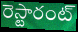
రెస్టారంట్